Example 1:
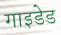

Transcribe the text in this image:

गाइडेड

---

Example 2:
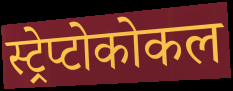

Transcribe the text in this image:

स्ट्रेप्टोकोकल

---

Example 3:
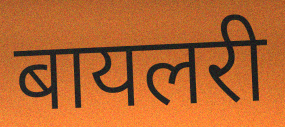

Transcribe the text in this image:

बायलरी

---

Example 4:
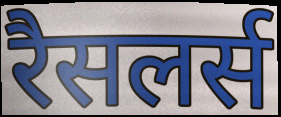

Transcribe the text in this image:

रैसलर्स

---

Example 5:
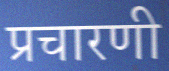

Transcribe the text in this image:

प्रचारणी